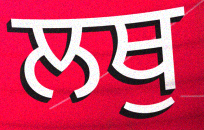
ਲਥੁ